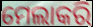
ମେଲାକରି